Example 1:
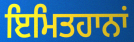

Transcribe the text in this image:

ਇਮਿਤਹਾਨਾਂ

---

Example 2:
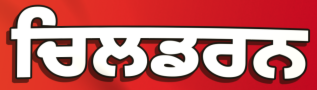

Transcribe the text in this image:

ਚਿਲਡਰਨ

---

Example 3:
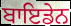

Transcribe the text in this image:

ਬਾਇਡੇਨ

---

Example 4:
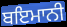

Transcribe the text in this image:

ਬਇਮਾਨੀ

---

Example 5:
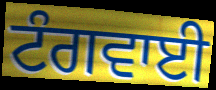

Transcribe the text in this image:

ਟੰਗਵਾਈ